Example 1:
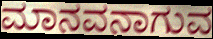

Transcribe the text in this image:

ಮಾನವನಾಗುವ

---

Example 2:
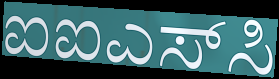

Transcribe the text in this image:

ಐಐಎಸ್‌ಸಿ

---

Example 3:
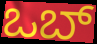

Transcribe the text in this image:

ಒಬ್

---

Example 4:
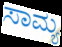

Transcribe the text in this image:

ಸಾಮ್ಯ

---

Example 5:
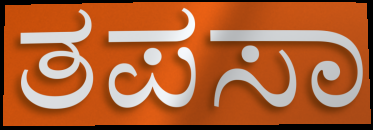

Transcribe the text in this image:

ತಪಸಾ